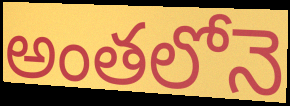
అంతలోనె